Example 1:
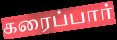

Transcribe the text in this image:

கரைப்பார்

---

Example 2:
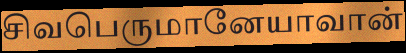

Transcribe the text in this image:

சிவபெருமானேயாவான்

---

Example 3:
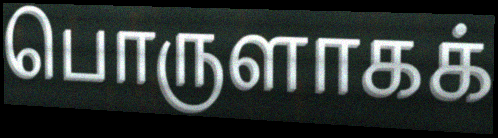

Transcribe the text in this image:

பொருளாகக்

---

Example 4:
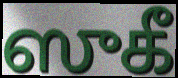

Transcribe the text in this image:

ஸுகீ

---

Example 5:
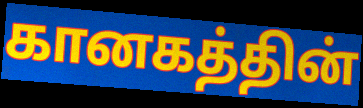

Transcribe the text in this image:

கானகத்தின்